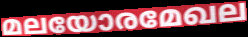
മലയോരമേഖല